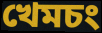
খেমচং